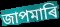
জাপমাৰি